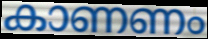
കാണണം